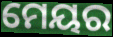
ମେୟର